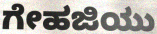
ಗೇಹಜಿಯು